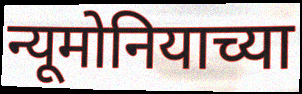
न्यूमोनियाच्या